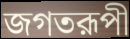
জগতরূপী